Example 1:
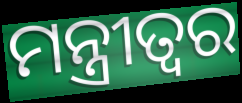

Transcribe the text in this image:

ମନ୍ତ୍ରୀତ୍ୱର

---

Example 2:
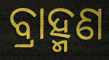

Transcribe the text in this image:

ବ୍ରାହ୍ମଣ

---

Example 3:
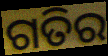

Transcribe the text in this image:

ଗତିର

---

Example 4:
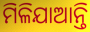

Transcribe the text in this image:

ମିଳିଯାଆନ୍ତି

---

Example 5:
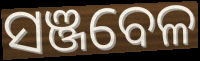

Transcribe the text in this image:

ସଞ୍ଜବେଳ